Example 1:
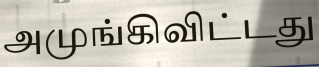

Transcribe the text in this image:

அமுங்கிவிட்டது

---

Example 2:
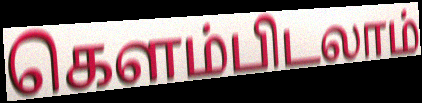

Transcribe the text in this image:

கெளம்பிடலாம்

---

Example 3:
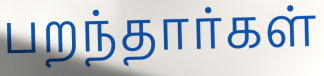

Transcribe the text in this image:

பறந்தார்கள்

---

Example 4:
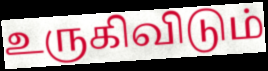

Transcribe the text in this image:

உருகிவிடும்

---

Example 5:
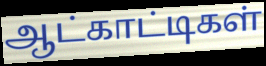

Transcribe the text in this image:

ஆட்காட்டிகள்